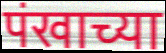
पंखाच्या